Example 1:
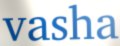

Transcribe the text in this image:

vasha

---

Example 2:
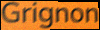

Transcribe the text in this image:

Grignon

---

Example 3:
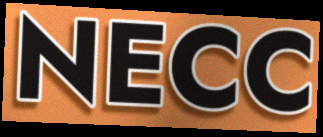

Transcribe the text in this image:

NECC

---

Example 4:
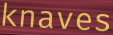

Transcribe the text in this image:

knaves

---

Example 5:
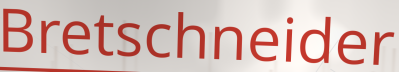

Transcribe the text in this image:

Bretschneider